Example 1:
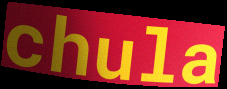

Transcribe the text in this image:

chula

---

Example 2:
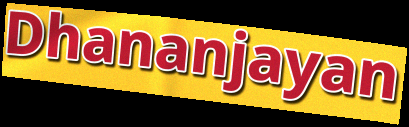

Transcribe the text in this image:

Dhananjayan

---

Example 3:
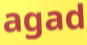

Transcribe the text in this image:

agad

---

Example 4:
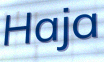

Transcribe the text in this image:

Haja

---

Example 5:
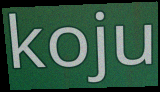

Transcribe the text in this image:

koju